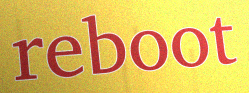
reboot